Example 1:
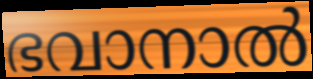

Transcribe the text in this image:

ഭവാനാൽ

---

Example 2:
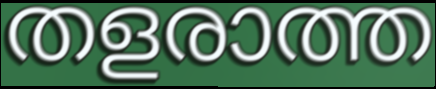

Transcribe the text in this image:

തളരാത്ത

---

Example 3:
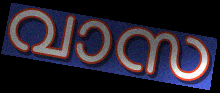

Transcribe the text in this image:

വാസ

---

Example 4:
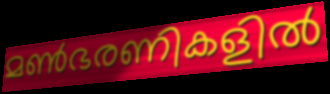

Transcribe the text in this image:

മൺഭരണികളിൽ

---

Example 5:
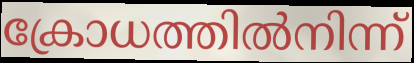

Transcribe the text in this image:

ക്രോധത്തിൽനിന്ന്